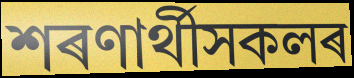
শৰণাৰ্থীসকলৰ